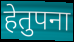
हेतुपना